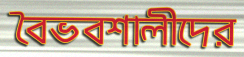
বৈভবশালীদের